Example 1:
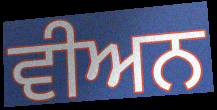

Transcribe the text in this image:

ਵੀਅਨ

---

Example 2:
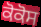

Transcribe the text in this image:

ਕੋਕੋਸ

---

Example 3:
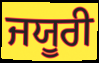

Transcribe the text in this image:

ਜਯੂਰੀ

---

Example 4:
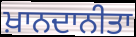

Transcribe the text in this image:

ਖ਼ਾਨਦਾਨੀਤਾ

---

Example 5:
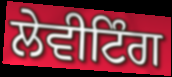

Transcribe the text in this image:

ਲੇਵੀਟਿੰਗ